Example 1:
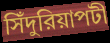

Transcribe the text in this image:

সিঁদুরিয়াপটী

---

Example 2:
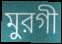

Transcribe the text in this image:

মুরগী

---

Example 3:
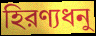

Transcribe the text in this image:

হিরণ্যধনু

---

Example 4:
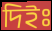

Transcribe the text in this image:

দিইঃ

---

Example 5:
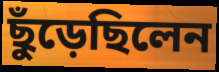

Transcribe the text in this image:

ছুঁড়েছিলেন